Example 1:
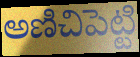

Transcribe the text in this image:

అణిచిపెట్టి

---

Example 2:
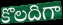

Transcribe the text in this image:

కొలదిగా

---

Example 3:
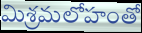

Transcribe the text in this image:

మిశ్రమలోహంతో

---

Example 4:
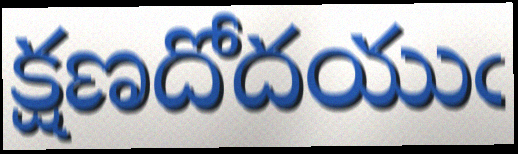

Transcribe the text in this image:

క్షణదోదయుఁ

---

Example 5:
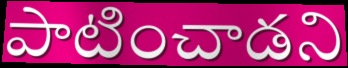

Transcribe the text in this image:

పాటించాడని